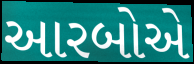
આરબોએ